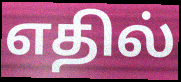
எதில்